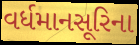
વર્ધમાનસૂરિના